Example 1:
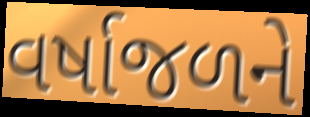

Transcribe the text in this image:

વર્ષાજળને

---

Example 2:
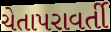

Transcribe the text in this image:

ચેતાપરાવર્તી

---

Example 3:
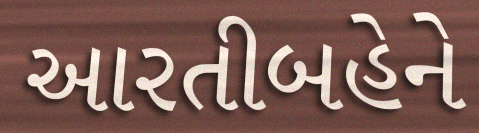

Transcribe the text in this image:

આરતીબહેને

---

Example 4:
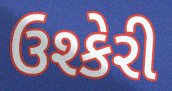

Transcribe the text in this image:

ઉશ્કેરી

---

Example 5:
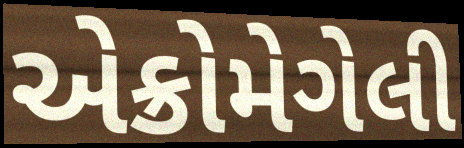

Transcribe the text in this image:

એક્રોમેગેલી